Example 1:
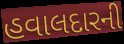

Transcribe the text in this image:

હવાલદારની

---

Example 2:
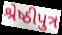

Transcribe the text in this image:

શ્રેષ્ઠીપુત્ર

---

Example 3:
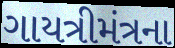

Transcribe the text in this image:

ગાયત્રીમંત્રના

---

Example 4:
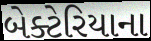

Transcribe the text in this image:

બેક્ટેરિયાના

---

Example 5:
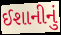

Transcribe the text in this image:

ઈશાનીનું